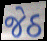
જેઠ